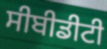
ਸੀਬੀਡੀਟੀ